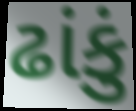
ઢાંકું